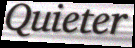
Quieter